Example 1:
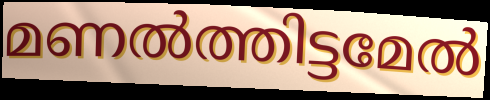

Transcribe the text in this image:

മണൽത്തിട്ടമേൽ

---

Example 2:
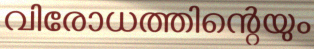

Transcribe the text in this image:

വിരോധത്തിന്റെയും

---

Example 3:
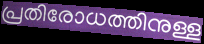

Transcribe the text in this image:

പ്രതിരോധത്തിനുള്ള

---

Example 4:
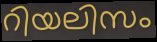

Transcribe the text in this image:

റിയലിസം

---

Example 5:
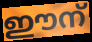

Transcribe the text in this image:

ഈന്